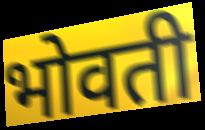
भोवती